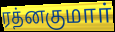
ரத்னகுமார்